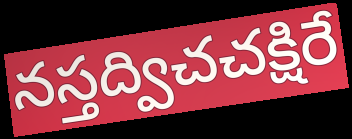
నస్తద్విచచక్షిరే